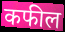
कफील